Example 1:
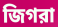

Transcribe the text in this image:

জিগরা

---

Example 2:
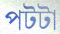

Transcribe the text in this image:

পটটা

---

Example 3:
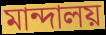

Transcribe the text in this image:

মান্দালয়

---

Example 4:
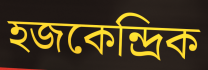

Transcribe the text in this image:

হজকেন্দ্রিক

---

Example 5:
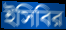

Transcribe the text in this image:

ইসিবির